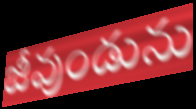
జీవుండును